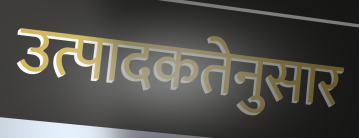
उत्पादकतेनुसार